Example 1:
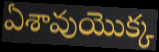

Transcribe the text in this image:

ఏశావుయొక్క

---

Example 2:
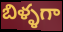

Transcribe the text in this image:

బిళ్ళగా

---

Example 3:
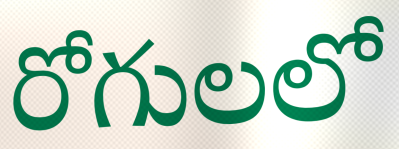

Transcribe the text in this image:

రోగులలో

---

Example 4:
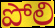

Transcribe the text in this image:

పోలి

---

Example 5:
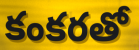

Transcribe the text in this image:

కంకరతో